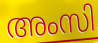
അംസി